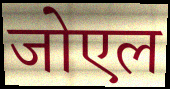
जोएल